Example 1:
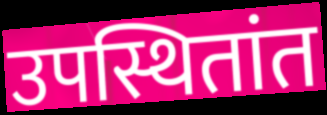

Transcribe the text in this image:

उपस्थितांत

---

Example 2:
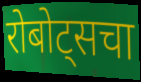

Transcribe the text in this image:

रोबोट्सचा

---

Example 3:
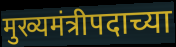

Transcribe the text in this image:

मुख्यमंत्रीपदाच्या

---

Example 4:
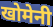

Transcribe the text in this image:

खोमेनी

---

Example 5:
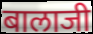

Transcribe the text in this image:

बालाजी